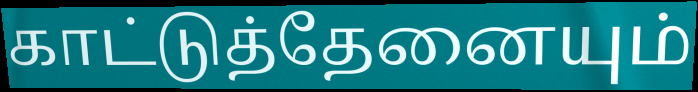
காட்டுத்தேனையும்